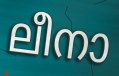
ലീനാ